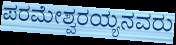
ಪರಮೇಶ್ವರಯ್ಯನವರು